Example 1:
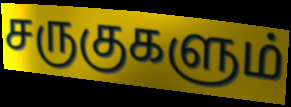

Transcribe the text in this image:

சருகுகளும்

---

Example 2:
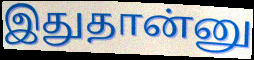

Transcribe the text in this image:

இதுதான்னு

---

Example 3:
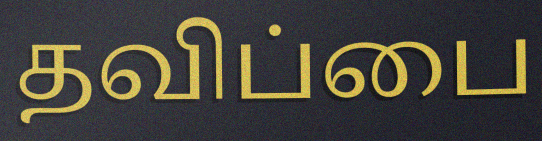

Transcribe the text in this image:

தவிப்பை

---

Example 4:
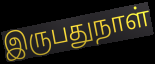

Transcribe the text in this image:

இருபதுநாள்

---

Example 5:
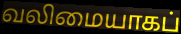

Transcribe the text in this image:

வலிமையாகப்